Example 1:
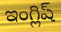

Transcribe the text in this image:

ఇంగ్లిష్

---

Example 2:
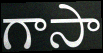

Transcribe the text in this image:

గాసా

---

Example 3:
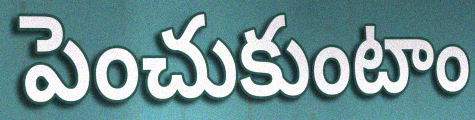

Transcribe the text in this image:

పెంచుకుంటాం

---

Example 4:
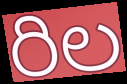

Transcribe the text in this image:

రిల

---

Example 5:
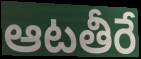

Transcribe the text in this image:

ఆటతీరే